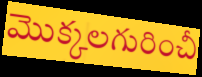
మొక్కలగురించీ